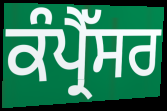
ਕੰਪ੍ਰੈੱਸਰ